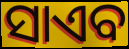
ସାଏବ